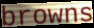
browns